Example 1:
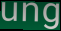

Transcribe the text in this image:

ung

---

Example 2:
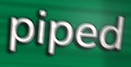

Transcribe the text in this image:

piped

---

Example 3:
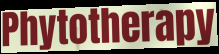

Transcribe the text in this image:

Phytotherapy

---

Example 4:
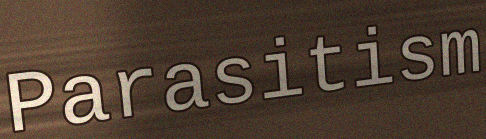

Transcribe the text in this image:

Parasitism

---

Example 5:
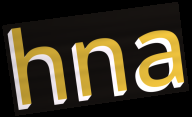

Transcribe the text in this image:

hna